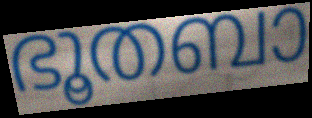
ഭൂതബാ